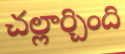
చల్లార్చింది